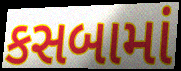
કસબામાં